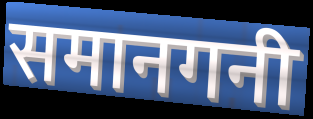
समानगनी